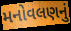
મનોવલણનું